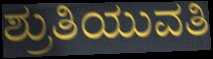
ಶ್ರುತಿಯುವತಿ